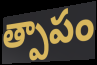
త్పాపం